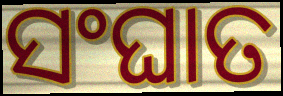
ସଂଘାତ